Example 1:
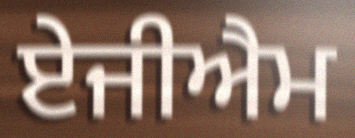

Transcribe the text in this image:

ਏਜੀਐਮ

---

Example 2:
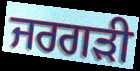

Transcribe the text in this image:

ਜਰਗੜੀ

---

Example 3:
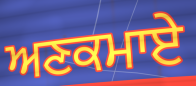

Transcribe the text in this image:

ਅਣਕਮਾਏ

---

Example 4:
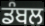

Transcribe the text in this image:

ਡੰਬਲ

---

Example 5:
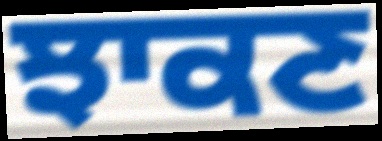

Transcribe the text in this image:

ਝਾਕਣ